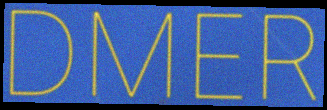
DMER